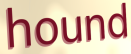
hound